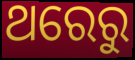
ଥରେରୁ